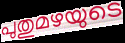
പുതുമഴയുടെ